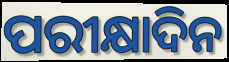
ପରୀକ୍ଷାଦିନ